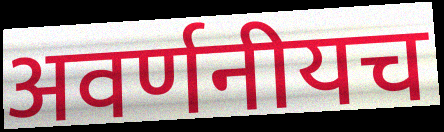
अवर्णनीयच